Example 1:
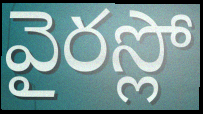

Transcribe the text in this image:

వైరస్లో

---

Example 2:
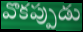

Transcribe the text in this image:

వొకప్పుడు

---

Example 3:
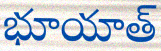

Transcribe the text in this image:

భూయాత్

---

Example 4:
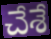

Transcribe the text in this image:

చేశే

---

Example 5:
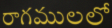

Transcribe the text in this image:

రాగములలో